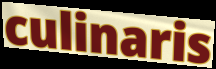
culinaris